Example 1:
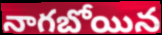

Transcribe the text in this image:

నాగబోయిన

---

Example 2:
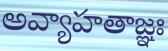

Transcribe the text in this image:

అవ్యాహతాజ్ఞః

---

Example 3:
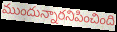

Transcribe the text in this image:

ముందున్నారనిపించింది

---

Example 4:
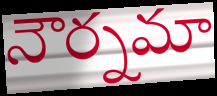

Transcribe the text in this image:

నౌర్నమా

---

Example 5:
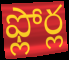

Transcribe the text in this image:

ఫ్లోర్ల